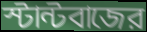
স্টান্টবাজের